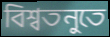
বিশ্বতনুতে